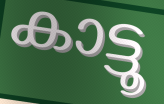
കാട്ടൂ